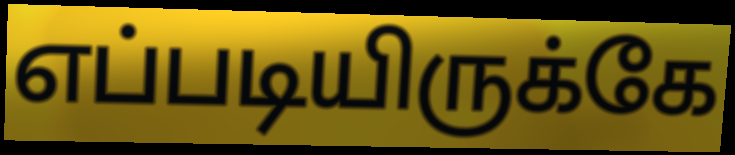
எப்படியிருக்கே